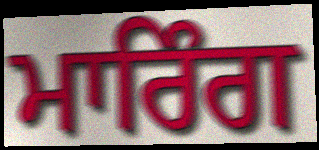
ਮਾਰਿੰਗ